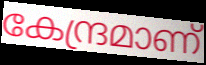
കേന്ദ്രമാണ്